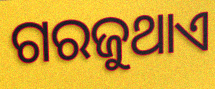
ଗରଜୁଥାଏ